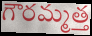
గౌరమ్మత్త